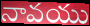
నావయు